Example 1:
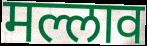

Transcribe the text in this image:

मल्लाव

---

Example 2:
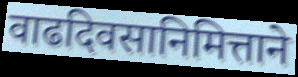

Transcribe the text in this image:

वाढदिवसानिमित्ताने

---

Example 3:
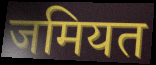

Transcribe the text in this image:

जमियत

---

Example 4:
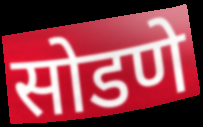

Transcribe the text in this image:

सोडणे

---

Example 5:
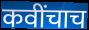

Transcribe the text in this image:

कवींचाच